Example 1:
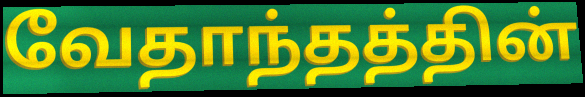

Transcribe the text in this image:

வேதாந்தத்தின்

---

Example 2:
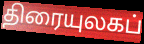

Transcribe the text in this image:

திரையுலகப்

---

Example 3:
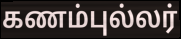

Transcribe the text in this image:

கணம்புல்லர்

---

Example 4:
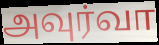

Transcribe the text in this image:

அவுர்வா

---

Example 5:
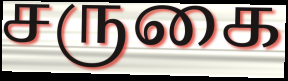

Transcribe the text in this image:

சருகை